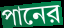
পানের